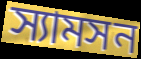
স্যামসন